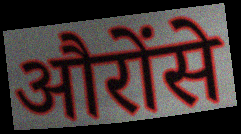
औरोंसे